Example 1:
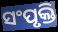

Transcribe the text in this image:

ସଂପୃକ୍ତି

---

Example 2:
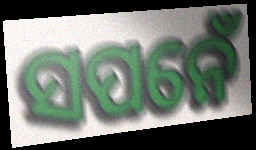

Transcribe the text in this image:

ସପନେଁ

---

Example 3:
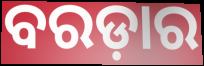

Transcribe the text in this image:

ବରଡ଼ାର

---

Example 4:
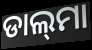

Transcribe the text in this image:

ଡାଲ୍‍ମା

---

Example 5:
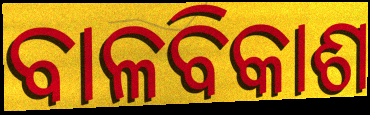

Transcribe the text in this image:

ବାଳବିକାଶ